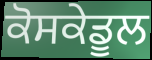
ਕੋਸਕੇਡੂਲ